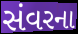
સંવરના